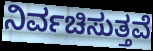
ನಿರ್ವಚಿಸುತ್ತವೆ